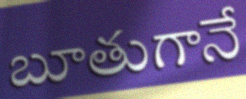
బూతుగానే